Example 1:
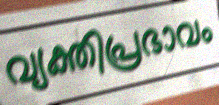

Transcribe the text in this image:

വ്യക്തിപ്രഭാവം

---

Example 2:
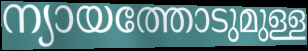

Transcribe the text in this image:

ന്യായത്തോടുമുള്ള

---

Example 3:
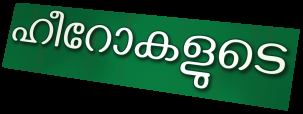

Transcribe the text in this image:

ഹീറോകളുടെ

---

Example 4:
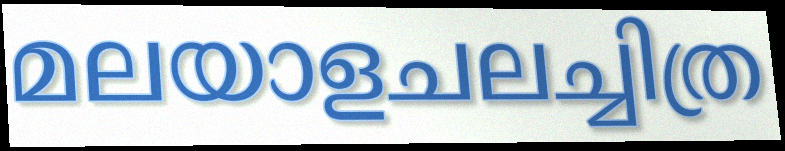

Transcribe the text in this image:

മലയാളചലച്ചിത്ര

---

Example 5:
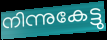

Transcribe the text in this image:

നിന്നുകേട്ടു